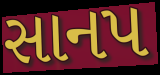
સાનપ